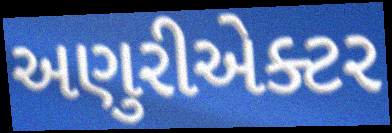
અણુરીએક્ટર